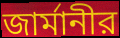
জার্মানীর